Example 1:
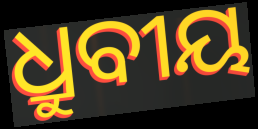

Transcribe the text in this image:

ଧ୍ରୁବୀୟ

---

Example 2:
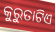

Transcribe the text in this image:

କୁରୁତାଟିଏ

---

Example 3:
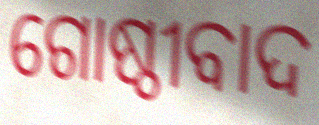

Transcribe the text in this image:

ଗୋଷ୍ଠୀବାଦ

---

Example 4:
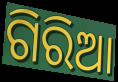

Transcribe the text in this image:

ଗିରିଆ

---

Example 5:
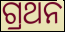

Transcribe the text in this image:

ଗ୍ରଥନ